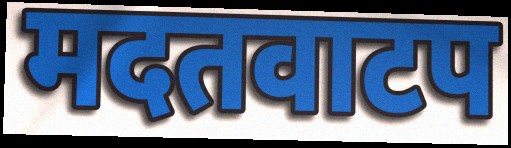
मदतवाटप